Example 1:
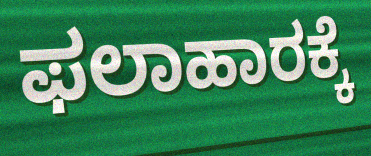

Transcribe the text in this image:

ಫಲಾಹಾರಕ್ಕೆ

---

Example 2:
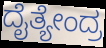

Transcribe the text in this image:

ದೈತ್ಯೇಂದ್ರ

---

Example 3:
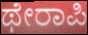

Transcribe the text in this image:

ಥೇರಾಪಿ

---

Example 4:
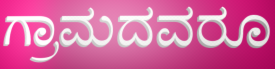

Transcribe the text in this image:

ಗ್ರಾಮದವರೂ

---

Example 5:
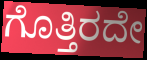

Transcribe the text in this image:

ಗೊತ್ತಿರದೇ